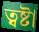
ত্বষ্টা